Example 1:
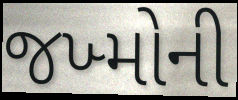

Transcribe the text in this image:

જખ્મોની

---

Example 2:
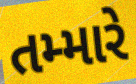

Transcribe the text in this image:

તમ્મારે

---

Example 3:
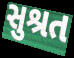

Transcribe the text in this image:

સુશ્રત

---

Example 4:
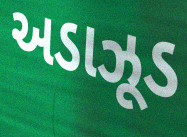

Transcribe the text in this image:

અડાઝૂડ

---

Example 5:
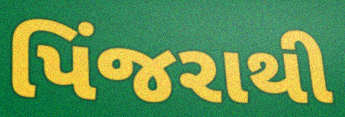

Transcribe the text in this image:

પિંજરાથી